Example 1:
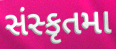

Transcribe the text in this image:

સંસ્કૃતમા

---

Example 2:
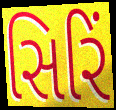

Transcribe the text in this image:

સિરિં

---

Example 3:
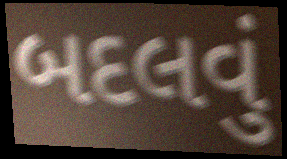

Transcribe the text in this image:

બદલવું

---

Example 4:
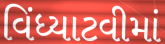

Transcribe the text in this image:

વિંધ્યાટવીમાં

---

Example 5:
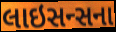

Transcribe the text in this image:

લાઇસન્સના